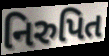
નિરુપિત